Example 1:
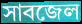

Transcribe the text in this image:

সাবজেল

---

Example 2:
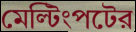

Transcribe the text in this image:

মেল্টিংপটের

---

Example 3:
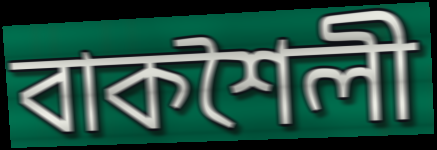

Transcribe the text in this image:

বাকশৈলী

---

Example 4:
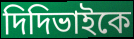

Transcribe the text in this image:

দিদিভাইকে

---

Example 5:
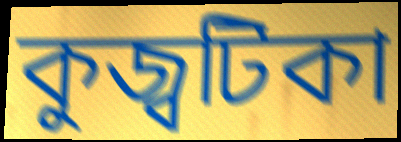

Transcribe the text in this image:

কুজ্বটিকা